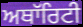
ਅਥਾੱਰਿਟੀ